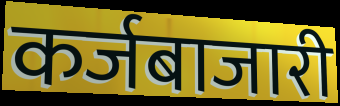
कर्जबाजारी